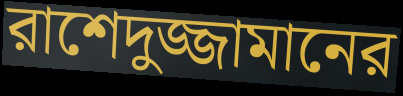
রাশেদুজ্জামানের